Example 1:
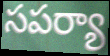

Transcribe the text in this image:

సపర్యా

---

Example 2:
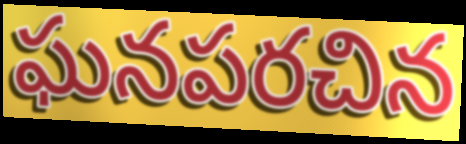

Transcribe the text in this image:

ఘనపరచిన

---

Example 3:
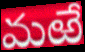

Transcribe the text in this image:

మఱే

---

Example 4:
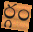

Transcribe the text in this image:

ర్గం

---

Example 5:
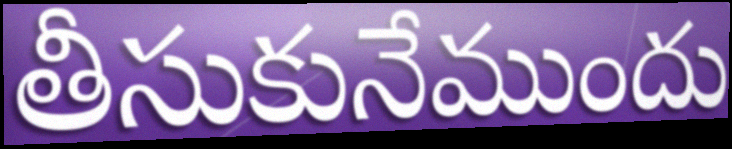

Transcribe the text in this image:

తీసుకునేముందు